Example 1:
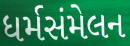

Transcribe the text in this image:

ધર્મસંમેલન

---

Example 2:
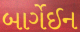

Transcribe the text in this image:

બાર્ગેઈન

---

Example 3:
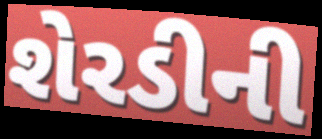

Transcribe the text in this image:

શેરડીની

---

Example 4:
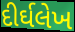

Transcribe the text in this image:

દીર્ઘલેખ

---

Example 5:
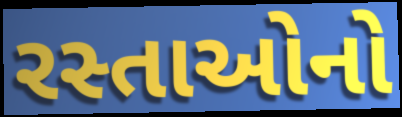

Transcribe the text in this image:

રસ્તાઓનો